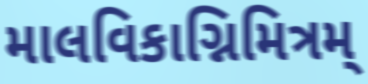
માલવિકાગ્નિમિત્રમ્